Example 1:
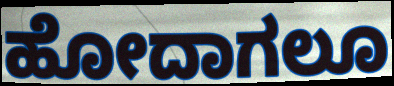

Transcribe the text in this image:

ಹೋದಾಗಲೂ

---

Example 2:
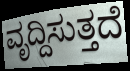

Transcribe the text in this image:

ವೃದ್ದಿಸುತ್ತದೆ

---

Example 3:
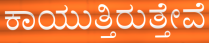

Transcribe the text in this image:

ಕಾಯುತ್ತಿರುತ್ತೇವೆ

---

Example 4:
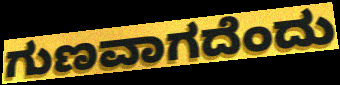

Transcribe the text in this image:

ಗುಣವಾಗದೆಂದು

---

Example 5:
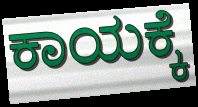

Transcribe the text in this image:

ಕಾಯಕ್ಕೆ